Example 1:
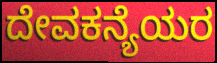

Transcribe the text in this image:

ದೇವಕನ್ಯೆಯರ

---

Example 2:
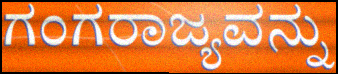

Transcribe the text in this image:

ಗಂಗರಾಜ್ಯವನ್ನು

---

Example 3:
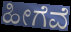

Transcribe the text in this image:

ಹೀಗೆವೆ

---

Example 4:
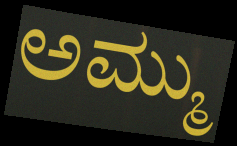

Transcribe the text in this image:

ಅಮ್ಮು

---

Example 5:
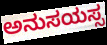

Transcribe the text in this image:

ಅನುಸಯಸ್ಸ